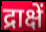
द्राक्षें